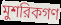
মুশরিকগণ